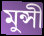
মুন্সী